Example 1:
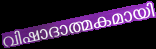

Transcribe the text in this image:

വിഷാദാത്മകമായി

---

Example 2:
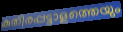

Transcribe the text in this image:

കുതിരപ്പട്ടാളത്തെയും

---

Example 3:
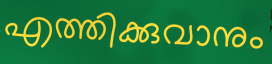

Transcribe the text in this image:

എത്തിക്കുവാനും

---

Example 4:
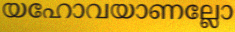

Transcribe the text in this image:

യഹോവയാണല്ലോ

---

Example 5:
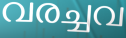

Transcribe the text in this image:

വരച്ചവ